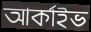
আর্কাইভ